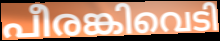
പീരങ്കിവെടി